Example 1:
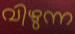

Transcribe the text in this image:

വിഴുന്ന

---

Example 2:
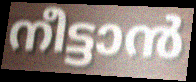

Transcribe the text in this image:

നീട്ടാൻ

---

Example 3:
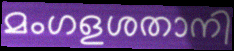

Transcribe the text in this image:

മംഗളശതാനി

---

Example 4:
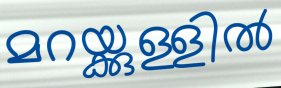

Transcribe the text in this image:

മറയ്ക്കുള്ളിൽ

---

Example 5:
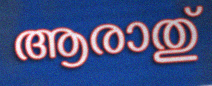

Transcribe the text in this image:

ആരാതു്